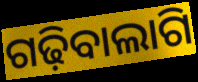
ଗଢ଼ିବାଲାଗି